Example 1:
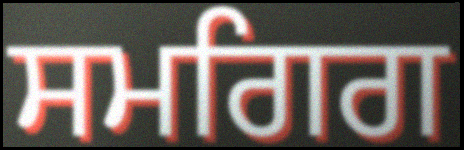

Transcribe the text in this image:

ਸਮਗਿਗ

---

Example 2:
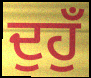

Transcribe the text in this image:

ਦੁਹੁਁ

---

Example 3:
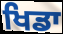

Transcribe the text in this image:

ਖਿਡਾ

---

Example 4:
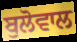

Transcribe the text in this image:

ਬੁਲੋਵਾਲ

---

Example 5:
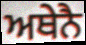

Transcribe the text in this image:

ਅਥੇਨੈ